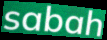
sabah